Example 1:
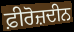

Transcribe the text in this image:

ਫ਼ੀਰੋਜ਼ਦੀਨ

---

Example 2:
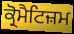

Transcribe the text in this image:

ਕ੍ਰੋਮੈਟਿਜ਼ਮ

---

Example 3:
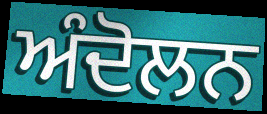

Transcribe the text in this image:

ਅੰਦੋਲਨ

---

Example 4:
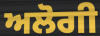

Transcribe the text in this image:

ਅਲੋਗੀ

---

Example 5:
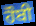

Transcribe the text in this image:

ਹੌਬੀ